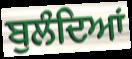
ਬੁਲੰਦਿਆਂ